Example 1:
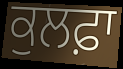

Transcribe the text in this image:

ਕੁਲਫ਼ਾ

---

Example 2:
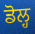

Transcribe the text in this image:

ਡੋਲ੍ਹ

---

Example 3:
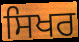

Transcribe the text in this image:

ਸਿਖਰ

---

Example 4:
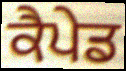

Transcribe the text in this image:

ਕੈਪੇਡ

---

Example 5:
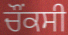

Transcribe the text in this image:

ਚੌਂਕਸੀ